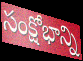
సంక్షోభాన్ని